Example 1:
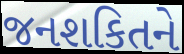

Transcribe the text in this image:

જનશકિતને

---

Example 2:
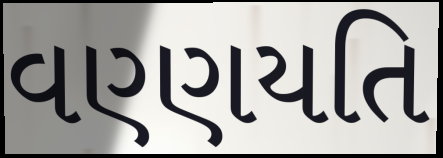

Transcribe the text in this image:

વણ્ણયતિ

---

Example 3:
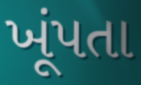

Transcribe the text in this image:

ખૂંપતા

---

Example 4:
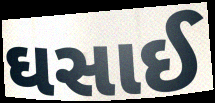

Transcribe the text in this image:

ઘસાઈ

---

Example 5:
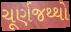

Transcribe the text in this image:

ચૂર્ણજથ્થો